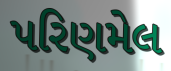
પરિણમેલ